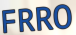
FRRO